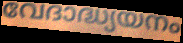
വേദാദ്ധ്യയനം